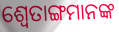
ଶ୍ଵେତାଙ୍ଗମାନଙ୍କ